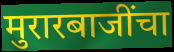
मुरारबाजींचा